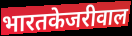
भारतकेजरीवाल